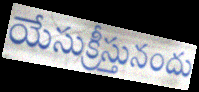
యేసుక్రీస్తునందు